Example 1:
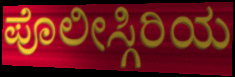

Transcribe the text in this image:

ಪೊಲೀಸ್ಗಿರಿಯ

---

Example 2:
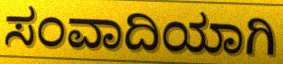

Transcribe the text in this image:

ಸಂವಾದಿಯಾಗಿ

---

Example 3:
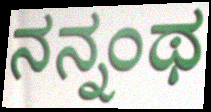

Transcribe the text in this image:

ನನ್ನಂಥ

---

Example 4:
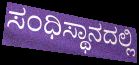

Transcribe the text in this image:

ಸಂಧಿಸ್ಥಾನದಲ್ಲಿ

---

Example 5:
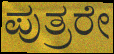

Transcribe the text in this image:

ಪುತ್ರರೇ